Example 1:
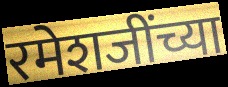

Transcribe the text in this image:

रमेशजींच्या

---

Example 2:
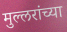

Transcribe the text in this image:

मुल्लरांच्या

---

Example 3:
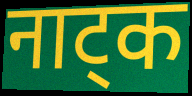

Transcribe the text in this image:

नाट्क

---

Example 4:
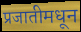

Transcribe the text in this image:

प्रजातीमधून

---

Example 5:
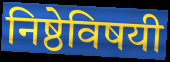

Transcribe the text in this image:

निष्ठेविषयी